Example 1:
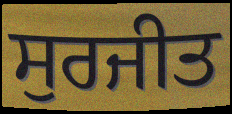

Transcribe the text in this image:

ਸੁਰਜੀਤ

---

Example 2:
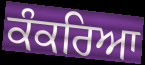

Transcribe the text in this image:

ਕੰਕਰਿਆ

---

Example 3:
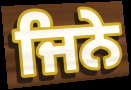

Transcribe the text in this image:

ਜਿਨੇ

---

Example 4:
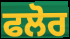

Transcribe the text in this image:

ਫਲੋਰ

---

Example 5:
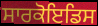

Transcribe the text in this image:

ਸਾਰਕੋਇਡਿਸ